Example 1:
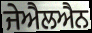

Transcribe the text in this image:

ਜੇਐਲਐਨ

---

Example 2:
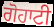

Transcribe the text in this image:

ਗੋਹਾਟੀ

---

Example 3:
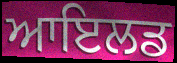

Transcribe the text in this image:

ਆਇਲਡ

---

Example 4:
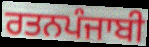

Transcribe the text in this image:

ਰਤਨਪੰਜਾਬੀ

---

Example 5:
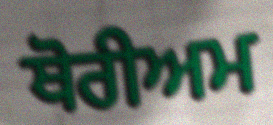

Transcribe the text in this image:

ਥੋਰੀਅਮ